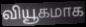
வியூகமாக